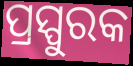
ପ୍ରସ୍ପୁରକ